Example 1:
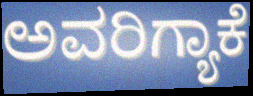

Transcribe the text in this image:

ಅವರಿಗ್ಯಾಕೆ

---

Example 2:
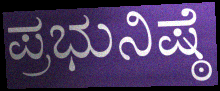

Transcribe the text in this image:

ಪ್ರಭುನಿಷ್ಠೆ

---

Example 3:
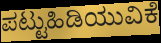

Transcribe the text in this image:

ಪಟ್ಟುಹಿಡಿಯುವಿಕೆ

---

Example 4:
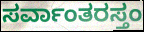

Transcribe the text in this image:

ಸರ್ವಾಂತರಸ್ತಂ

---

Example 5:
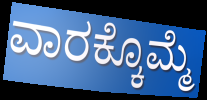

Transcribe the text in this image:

ವಾರಕ್ಕೊಮ್ಮೆ